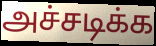
அச்சடிக்க